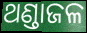
ଥଣ୍ଡାଜଳ